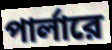
পার্লারে